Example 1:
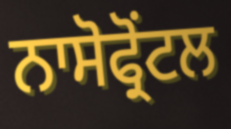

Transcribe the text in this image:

ਨਾਸੋਫ੍ਰੋਂਟਲ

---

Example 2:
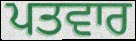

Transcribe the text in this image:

ਪਤਵਾਰ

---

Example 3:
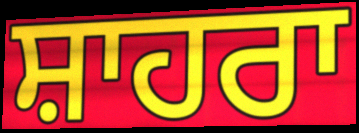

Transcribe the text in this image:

ਸ਼ਾਹਰਾ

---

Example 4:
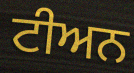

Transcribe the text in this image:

ਟੀਅਨ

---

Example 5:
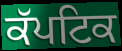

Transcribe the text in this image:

ਕੱਪਟਿਕ